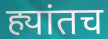
ह्यांतच